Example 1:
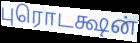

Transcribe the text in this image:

புரொடக்ஷன்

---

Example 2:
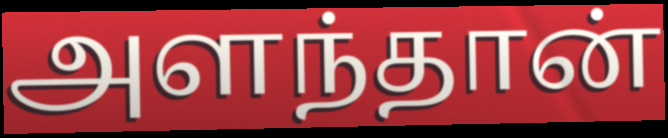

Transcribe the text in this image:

அளந்தான்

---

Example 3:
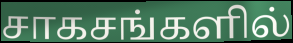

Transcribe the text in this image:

சாகசங்களில்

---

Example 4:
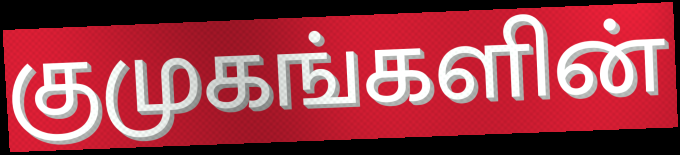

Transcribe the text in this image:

குமுகங்களின்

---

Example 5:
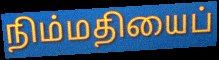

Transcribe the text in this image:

நிம்மதியைப்